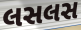
લસલસ